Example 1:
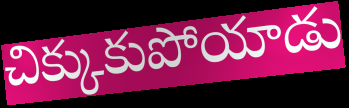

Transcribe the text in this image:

చిక్కుకుపోయాడు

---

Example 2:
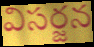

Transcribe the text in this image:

విసర్జన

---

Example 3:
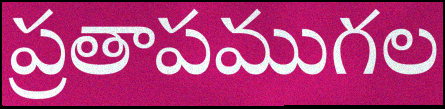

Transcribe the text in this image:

ప్రతాపముగల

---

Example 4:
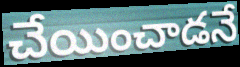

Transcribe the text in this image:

చేయించాడనే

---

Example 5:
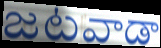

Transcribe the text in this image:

జటవాడా